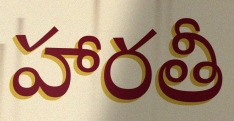
హారతీ